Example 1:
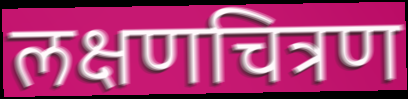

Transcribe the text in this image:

लक्षणचित्रण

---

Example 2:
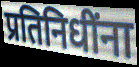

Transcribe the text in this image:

प्रतिनिधींना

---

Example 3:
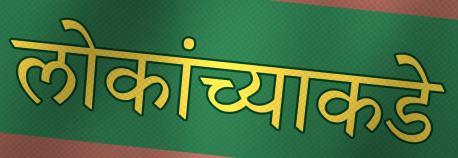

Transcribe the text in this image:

लोकांच्याकडे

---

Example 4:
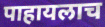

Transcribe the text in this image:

पाहायलाच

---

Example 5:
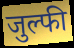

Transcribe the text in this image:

जुल्फी